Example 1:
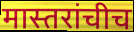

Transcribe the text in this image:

मास्तरांचीच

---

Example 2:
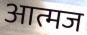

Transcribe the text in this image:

आत्मज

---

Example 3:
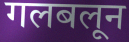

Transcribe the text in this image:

गलबलून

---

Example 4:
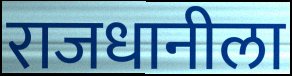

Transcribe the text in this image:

राजधानीला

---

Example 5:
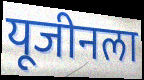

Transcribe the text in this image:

यूजीनला